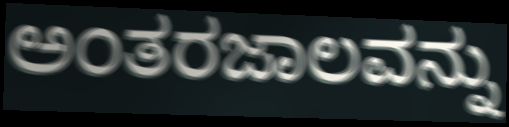
ಅಂತರಜಾಲವನ್ನು